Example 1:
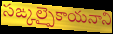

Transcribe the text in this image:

సఙ్కల్పైకాయనాని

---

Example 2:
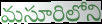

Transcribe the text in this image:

మసూరిలోని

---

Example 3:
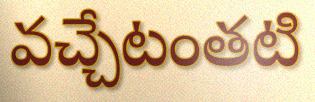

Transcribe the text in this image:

వచ్చేటంతటి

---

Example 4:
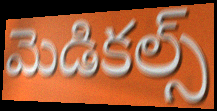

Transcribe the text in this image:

మెడికల్స్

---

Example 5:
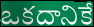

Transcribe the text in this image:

ఒకదానికే